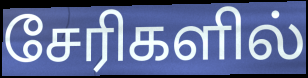
சேரிகளில்